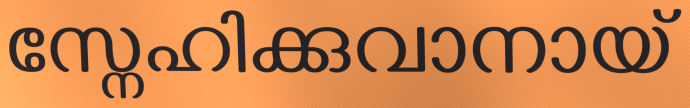
സ്നേഹിക്കുവാനായ്